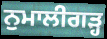
ਨੁਮਾਲੀਗੜ੍ਹ